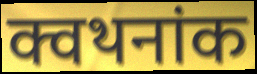
क्वथनांक